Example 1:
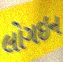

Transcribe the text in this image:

લોગઇન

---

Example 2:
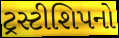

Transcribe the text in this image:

ટ્રસ્ટીશિપનો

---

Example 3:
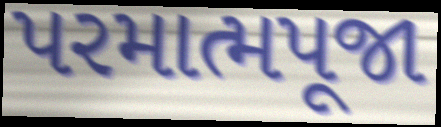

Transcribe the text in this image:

પરમાત્મપૂજા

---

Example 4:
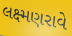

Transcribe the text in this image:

લક્ષ્મણરાવે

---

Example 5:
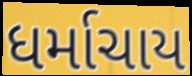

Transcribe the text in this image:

ધર્માચાય